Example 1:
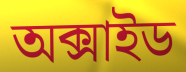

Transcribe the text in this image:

অক্সাইড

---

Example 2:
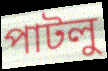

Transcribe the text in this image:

পাটলু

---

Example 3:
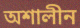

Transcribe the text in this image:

অশালীন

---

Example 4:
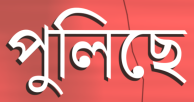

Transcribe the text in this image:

পুলিছে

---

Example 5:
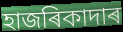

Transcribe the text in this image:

হাজৰিকাদাৰ